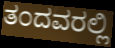
ತಂದವರಲ್ಲಿ